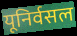
यूनिर्वसल